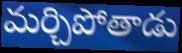
మర్చిపోతాడు